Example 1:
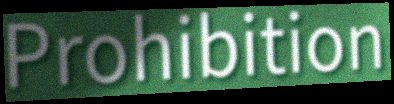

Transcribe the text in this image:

Prohibition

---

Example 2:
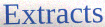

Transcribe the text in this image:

Extracts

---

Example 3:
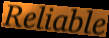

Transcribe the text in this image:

Reliable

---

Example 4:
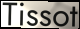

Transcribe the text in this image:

Tissot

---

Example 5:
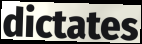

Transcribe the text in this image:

dictates